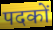
पदकों